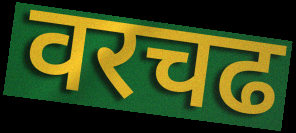
वरचढ